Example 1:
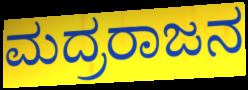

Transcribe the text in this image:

ಮದ್ರರಾಜನ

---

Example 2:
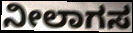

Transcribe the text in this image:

ನೀಲಾಗಸ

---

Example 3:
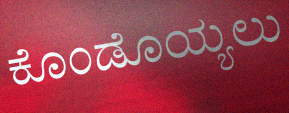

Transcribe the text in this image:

ಕೊಂಡೊಯ್ಯಲು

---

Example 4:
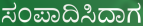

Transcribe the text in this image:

ಸಂಪಾದಿಸಿದಾಗ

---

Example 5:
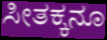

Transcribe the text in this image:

ಸೀತಕ್ಕನೂ